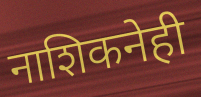
नाशिकनेही